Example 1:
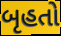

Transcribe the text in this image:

બૃહતો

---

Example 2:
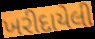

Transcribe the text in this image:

ખરીદાયેલી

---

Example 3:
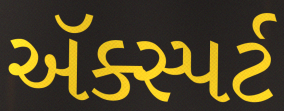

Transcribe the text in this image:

ઍક્સ્પર્ટ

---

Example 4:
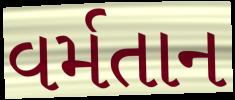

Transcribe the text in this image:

વર્મતાન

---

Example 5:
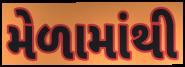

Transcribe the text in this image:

મેળામાંથી